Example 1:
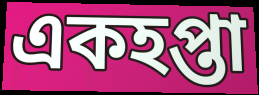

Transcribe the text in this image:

একহপ্তা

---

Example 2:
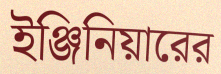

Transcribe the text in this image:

ইঞ্জিনিয়ারের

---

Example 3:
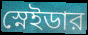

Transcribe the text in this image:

স্নেইডার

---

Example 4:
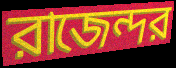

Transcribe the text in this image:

রাজেন্দর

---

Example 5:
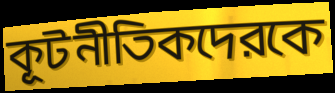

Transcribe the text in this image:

কূটনীতিকদেরকে